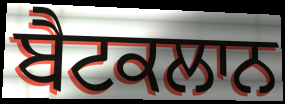
ਬੈਟਕਲਾਨ